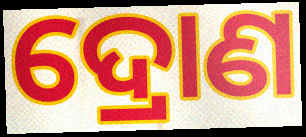
ଦ୍ରୋଣ